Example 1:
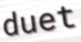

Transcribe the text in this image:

duet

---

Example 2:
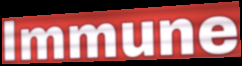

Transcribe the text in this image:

Immune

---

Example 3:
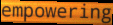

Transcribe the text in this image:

empowering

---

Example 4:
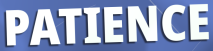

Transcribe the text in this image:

PATIENCE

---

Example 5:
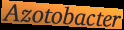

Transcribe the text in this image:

Azotobacter